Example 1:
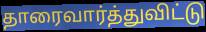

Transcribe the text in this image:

தாரைவார்த்துவிட்டு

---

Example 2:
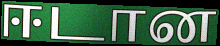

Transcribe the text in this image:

ஈடான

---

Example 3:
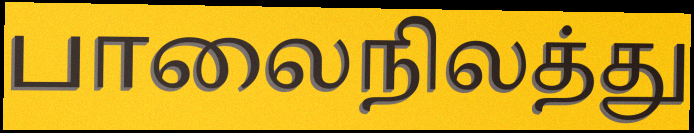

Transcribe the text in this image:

பாலைநிலத்து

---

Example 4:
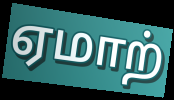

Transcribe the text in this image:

ஏமாற்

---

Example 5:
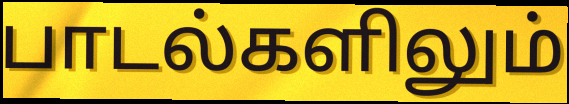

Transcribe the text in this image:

பாடல்களிலும்